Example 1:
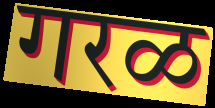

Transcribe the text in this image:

गरळ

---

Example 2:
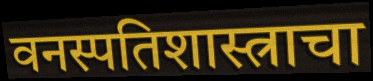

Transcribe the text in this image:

वनस्पतिशास्त्राचा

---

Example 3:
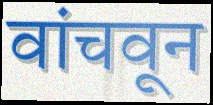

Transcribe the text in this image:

वांचवून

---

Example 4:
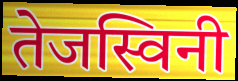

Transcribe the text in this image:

तेजस्विनी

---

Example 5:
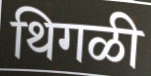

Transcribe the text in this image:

थिगळी